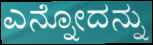
ಎನ್ನೋದನ್ನು